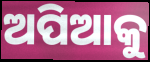
ଅପିଆକୁ